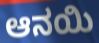
ಆನಯಿ